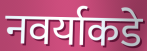
नवर्याकडे